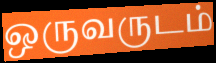
ஒருவருடம்